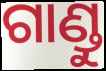
ଗାଣ୍ଡୁ